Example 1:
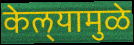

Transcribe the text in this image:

केल्यामुळे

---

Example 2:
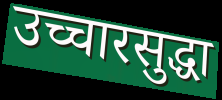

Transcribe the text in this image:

उच्चारसुद्धा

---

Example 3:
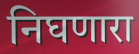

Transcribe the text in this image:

निघणारा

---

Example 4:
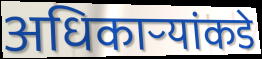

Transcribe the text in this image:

अधिकाऱ्यांकडे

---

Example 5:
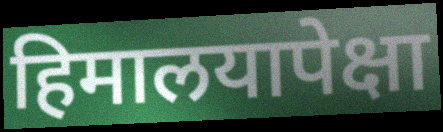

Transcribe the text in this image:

हिमालयापेक्षा